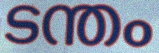
ടന്തം